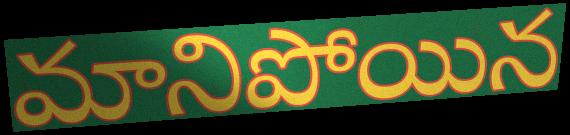
మానిపోయిన